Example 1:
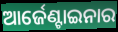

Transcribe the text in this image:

ଆର୍ଜେଣ୍ଟାଇନାର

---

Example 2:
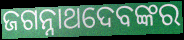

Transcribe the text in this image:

ଜଗନ୍ନାଥଦେବଙ୍କର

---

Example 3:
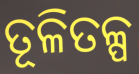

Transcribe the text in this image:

ତୂଳିତଳ୍ପ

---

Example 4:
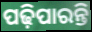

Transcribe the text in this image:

ପଢ଼ିପାରନ୍ତି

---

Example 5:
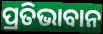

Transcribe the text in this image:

ପ୍ରତିଭାବାନ